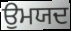
ਉਮਯਦ